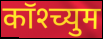
कॉश्च्युम